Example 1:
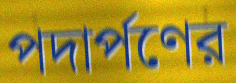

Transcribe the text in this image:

পদার্পণের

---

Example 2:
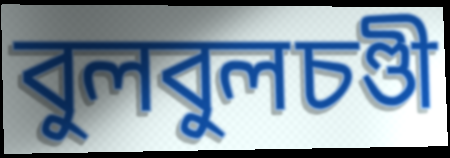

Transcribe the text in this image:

বুলবুলচণ্ডী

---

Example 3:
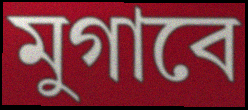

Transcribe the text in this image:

মুগাবে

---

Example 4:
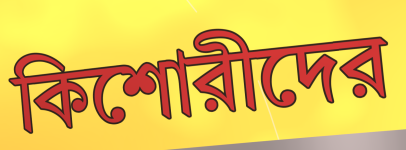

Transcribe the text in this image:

কিশোরীদের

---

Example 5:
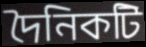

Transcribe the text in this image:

দৈনিকটি